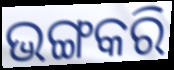
ଭଙ୍ଗକରି